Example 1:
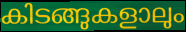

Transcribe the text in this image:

കിടങ്ങുകളാലും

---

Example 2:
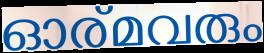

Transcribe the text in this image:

ഓര്മവരും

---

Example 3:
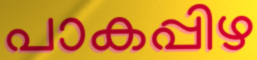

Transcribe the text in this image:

പാകപ്പിഴ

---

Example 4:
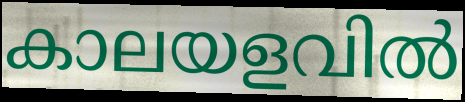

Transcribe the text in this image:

കാലയളവിൽ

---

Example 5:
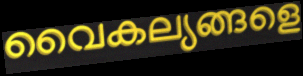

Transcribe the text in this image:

വൈകല്യങ്ങളെ